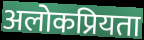
अलोकप्रियता